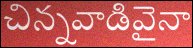
చిన్నవాడివైనా